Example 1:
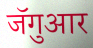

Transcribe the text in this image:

जॅगुआर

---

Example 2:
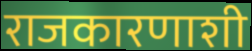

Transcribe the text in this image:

राजकारणाशी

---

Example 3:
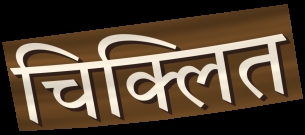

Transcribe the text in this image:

चिक्लित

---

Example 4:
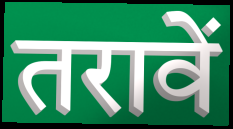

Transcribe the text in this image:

तरावें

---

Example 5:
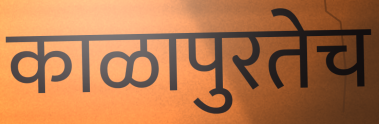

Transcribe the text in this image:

काळापुरतेच